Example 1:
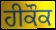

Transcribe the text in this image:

ਹੀਕੌਕ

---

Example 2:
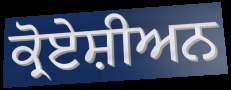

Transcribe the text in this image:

ਕ੍ਰੋਏਸ਼ੀਅਨ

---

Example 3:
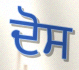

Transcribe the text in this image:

ਦੋਸ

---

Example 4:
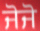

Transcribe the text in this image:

ਜੋਜੋ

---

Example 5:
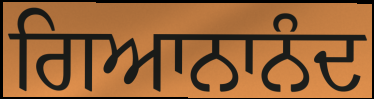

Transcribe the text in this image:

ਗਿਆਨਾਨੰਦ